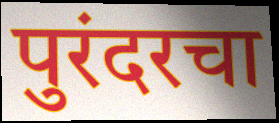
पुरंदरचा